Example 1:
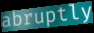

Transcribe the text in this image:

abruptly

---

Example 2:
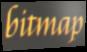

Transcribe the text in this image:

bitmap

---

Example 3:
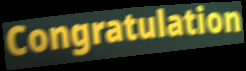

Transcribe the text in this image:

Congratulation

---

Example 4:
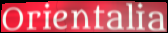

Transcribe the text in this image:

Orientalia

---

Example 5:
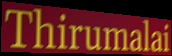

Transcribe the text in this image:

Thirumalai